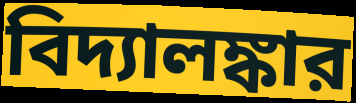
বিদ্যালঙ্কার